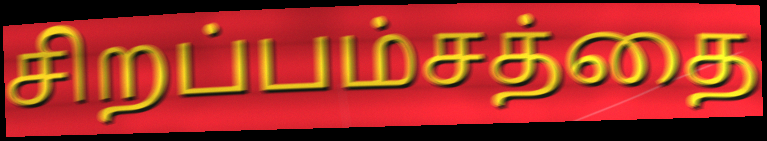
சிறப்பம்சத்தை